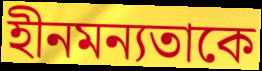
হীনমন্যতাকে